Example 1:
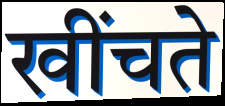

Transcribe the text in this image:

खींचते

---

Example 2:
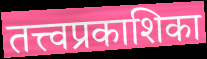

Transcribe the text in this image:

तत्त्वप्रकाशिका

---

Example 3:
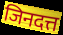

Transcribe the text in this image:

जिनदत्त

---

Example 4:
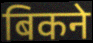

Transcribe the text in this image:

बिकने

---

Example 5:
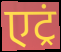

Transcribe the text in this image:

एट्रं